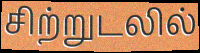
சிற்றுடலில்